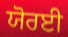
ਯੋਰਈ